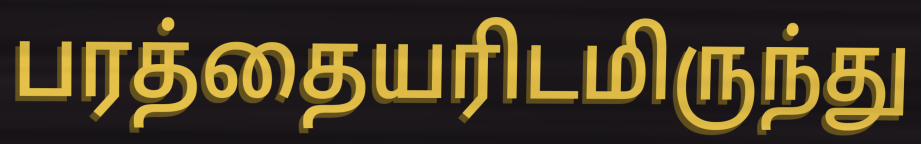
பரத்தையரிடமிருந்து